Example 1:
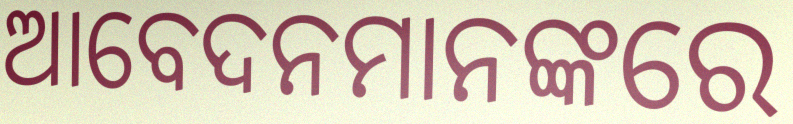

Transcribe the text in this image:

ଆବେଦନମାନଙ୍କରେ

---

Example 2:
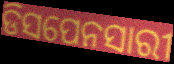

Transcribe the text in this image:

ଡିସପେନସାରୀ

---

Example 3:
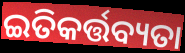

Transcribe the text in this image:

ଇତିକର୍ତ୍ତବ୍ୟତା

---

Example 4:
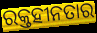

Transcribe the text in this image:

ରକ୍ତହୀନତାର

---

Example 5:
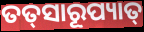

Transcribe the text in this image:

ତତ୍‌ସାରୂପ୍ୟାତ୍